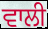
ਵਾਲੀ